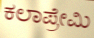
ಕಲಾಪ್ರೇಮಿ